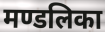
मण्डलिका